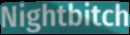
Nightbitch